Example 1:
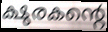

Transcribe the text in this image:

ക്ഷുരകന്റെ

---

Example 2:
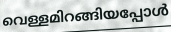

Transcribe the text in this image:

വെള്ളമിറങ്ങിയപ്പോൾ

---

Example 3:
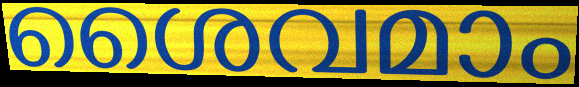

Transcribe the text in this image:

ശൈവമാം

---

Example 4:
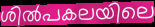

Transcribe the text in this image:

ശിൽപകലയിലെ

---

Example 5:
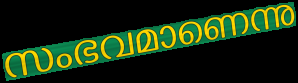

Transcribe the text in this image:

സംഭവമാണെന്നു